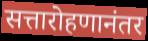
सत्तारोहणानंतर